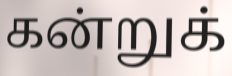
கன்றுக்